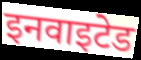
इनवाइटेड